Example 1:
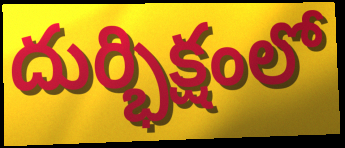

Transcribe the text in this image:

దుర్భిక్షంలో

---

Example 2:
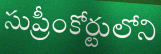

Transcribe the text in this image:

సుప్రీంకోర్టులోని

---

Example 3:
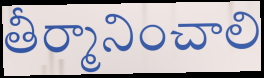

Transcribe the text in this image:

తీర్మానించాలి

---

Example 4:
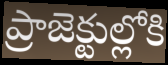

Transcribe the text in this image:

ప్రాజెక్టుల్లోకి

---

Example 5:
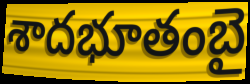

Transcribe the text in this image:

శాదభూతంబై